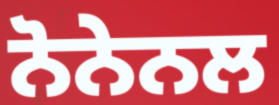
ਨੋਨੇਨਲ